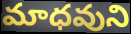
మాధవుని